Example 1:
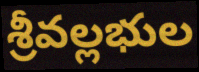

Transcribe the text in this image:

శ్రీవల్లభుల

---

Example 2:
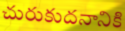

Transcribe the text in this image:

చురుకుదనానికి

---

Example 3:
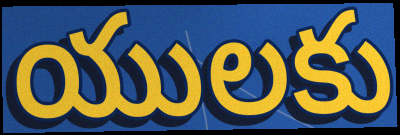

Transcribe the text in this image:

యులకు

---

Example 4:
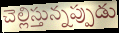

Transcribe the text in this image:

చెల్లిస్తున్నప్పుడు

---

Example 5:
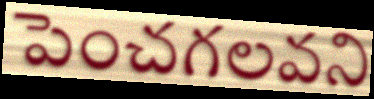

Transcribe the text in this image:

పెంచగలవని